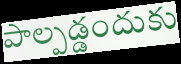
పాల్పడ్డందుకు